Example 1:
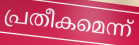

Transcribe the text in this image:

പ്രതീകമെന്ന്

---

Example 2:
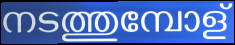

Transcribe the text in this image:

നടത്തുമ്പോള്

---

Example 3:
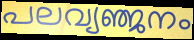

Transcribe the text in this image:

പലവ്യഞ്ജനം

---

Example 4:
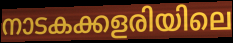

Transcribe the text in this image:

നാടകക്കളരിയിലെ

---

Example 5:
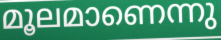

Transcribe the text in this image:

മൂലമാണെന്നു